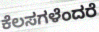
ಕೆಲಸಗಳೆಂದರೆ